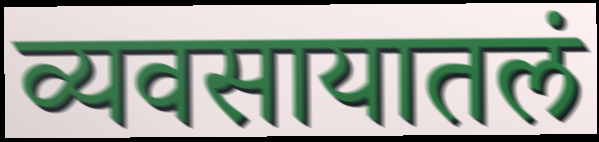
व्यवसायातलं